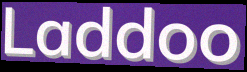
Laddoo